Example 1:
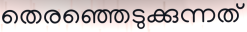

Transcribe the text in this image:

തെരഞ്ഞെടുക്കുന്നത്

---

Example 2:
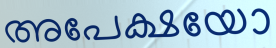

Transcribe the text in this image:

അപേക്ഷയോ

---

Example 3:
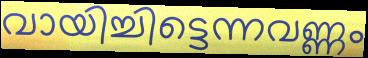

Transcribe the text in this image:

വായിച്ചിട്ടെന്നവണ്ണം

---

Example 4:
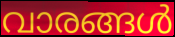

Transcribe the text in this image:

വാരങ്ങൾ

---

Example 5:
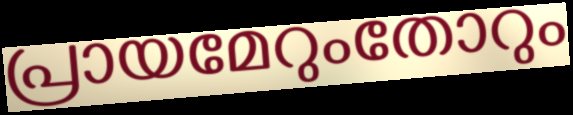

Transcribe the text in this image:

പ്രായമേറുംതോറും